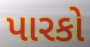
પારકો